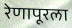
रेणापूरला